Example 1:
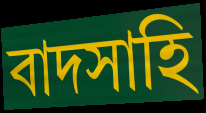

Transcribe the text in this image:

বাদসাহি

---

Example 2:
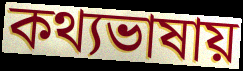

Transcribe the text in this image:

কথ্যভাষায়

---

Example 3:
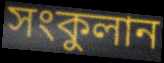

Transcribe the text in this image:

সংকুলান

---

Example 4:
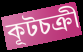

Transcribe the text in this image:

কূটচক্রী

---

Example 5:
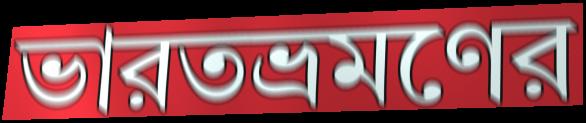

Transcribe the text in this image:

ভারতভ্রমণের